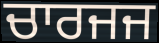
ਚਾਰਜਜ